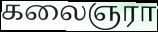
கலைஞரா